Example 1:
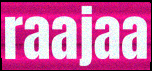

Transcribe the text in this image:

raajaa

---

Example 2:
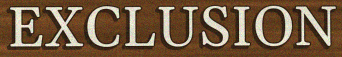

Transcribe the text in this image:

EXCLUSION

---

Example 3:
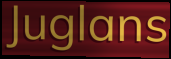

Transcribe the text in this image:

Juglans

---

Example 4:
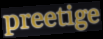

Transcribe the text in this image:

preetige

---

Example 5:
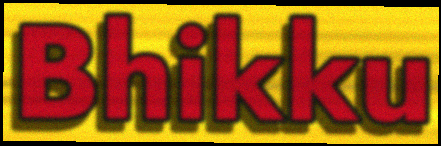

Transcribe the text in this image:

Bhikku